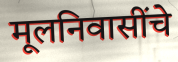
मूलनिवासींचे